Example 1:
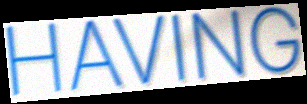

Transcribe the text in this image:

HAVING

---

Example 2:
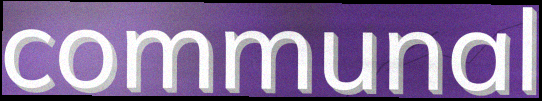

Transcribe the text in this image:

communal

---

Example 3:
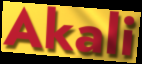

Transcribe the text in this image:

Akali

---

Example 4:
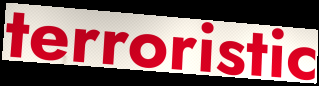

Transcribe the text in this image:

terroristic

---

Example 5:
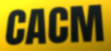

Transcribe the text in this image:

CACM